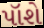
પૉશે